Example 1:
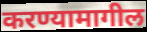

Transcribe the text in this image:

करण्यामागील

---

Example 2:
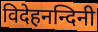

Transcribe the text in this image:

विदेहनन्दिनी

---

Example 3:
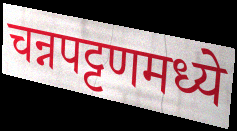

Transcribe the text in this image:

चन्नपट्टणमध्ये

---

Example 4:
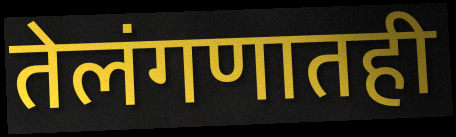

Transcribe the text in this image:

तेलंगणातही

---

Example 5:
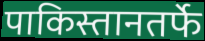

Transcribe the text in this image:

पाकिस्तानतर्फे